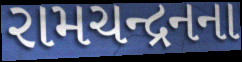
રામચન્દ્રનના